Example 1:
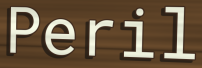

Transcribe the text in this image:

Peril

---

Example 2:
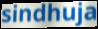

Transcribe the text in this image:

sindhuja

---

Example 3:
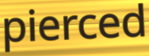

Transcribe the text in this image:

pierced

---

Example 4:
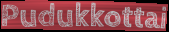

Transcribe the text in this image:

Pudukkottai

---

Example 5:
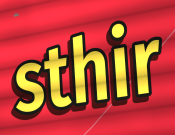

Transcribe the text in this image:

sthir